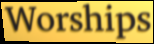
Worships